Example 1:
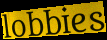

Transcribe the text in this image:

lobbies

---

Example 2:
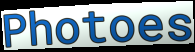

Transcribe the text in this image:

Photoes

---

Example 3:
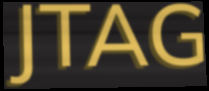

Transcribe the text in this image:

JTAG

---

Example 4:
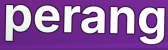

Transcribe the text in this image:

perang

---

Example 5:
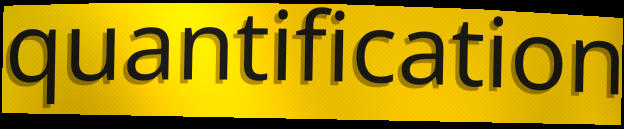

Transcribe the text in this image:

quantification